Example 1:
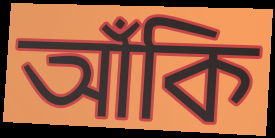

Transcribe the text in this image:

আঁকি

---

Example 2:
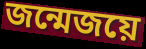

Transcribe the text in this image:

জন্মেজয়ে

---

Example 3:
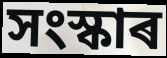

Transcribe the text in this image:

সংস্কাৰ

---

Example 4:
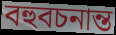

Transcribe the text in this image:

বহুবচনান্ত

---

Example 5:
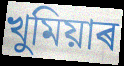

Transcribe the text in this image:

খুমিয়াৰ